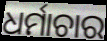
ଧର୍ମାଚାର